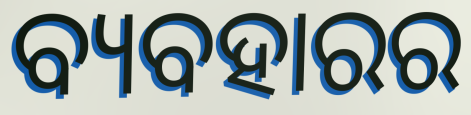
ବ୍ୟବହାରର